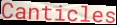
Canticles